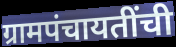
ग्रामपंचायतींची